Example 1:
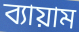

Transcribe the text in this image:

ব্যায়াম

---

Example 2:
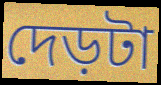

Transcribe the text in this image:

দেড়টা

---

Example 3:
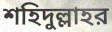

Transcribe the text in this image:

শহিদুল্লাহর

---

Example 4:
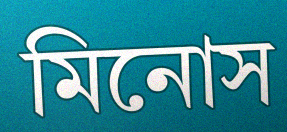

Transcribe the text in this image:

মিনোস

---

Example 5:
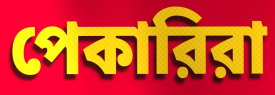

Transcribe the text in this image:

পেকারিরা